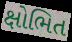
ક્ષોભિત